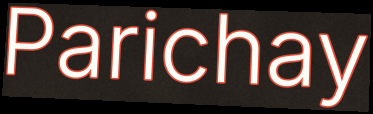
Parichay